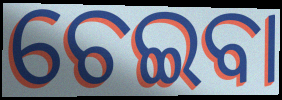
ଚେଇବା